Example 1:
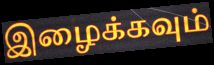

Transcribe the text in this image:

இழைக்கவும்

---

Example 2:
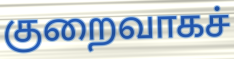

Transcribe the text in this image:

குறைவாகச்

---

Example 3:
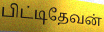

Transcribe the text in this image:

பிட்டிதேவன்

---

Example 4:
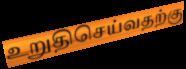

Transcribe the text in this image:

உறுதிசெய்வதற்கு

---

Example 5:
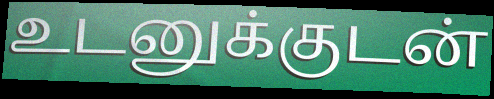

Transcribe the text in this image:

உடனுக்குடன்